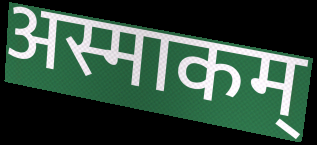
अस्माकम्